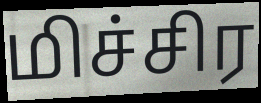
மிச்சிர